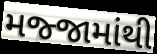
મજ્જામાંથી